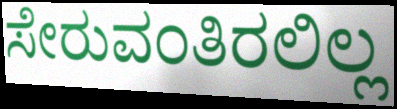
ಸೇರುವಂತಿರಲಿಲ್ಲ